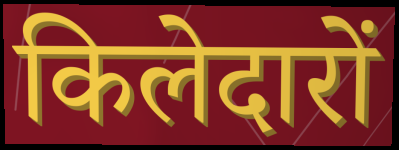
किलेदारों